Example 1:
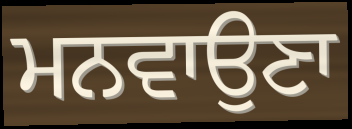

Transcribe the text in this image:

ਮਨਵਾਉਣਾ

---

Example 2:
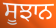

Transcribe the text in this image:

ਸੂਝਾਨ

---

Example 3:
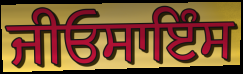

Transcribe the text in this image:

ਜੀਓਸਾਇੰਸ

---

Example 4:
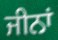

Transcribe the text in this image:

ਜੀਨਾਂ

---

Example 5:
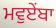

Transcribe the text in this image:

ਮਵੁਏਂਬਾ